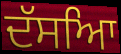
ਦੱਸਆਿ